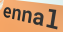
ennal